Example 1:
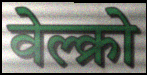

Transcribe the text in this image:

वेल्क्रो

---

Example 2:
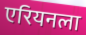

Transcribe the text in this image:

एरियनला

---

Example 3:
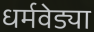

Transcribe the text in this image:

धर्मवेड्या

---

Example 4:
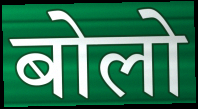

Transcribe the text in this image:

बोलो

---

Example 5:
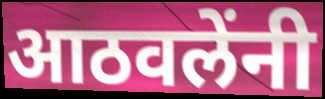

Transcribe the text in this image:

आठवलेंनी